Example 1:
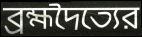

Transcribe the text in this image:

ব্রহ্মদৈত্যের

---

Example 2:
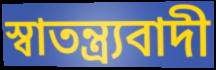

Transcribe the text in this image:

স্বাতন্ত্র্যবাদী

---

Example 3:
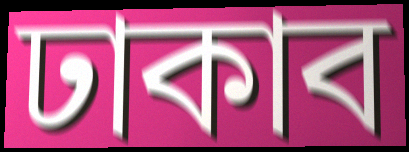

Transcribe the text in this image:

ঢাকাব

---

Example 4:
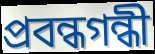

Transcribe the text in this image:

প্রবন্ধগন্ধী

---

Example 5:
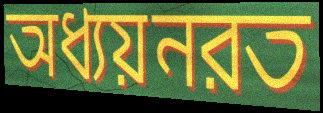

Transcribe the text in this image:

অধ্যয়নরত